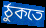
ঠুকতে